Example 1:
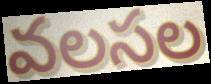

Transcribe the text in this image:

వలసల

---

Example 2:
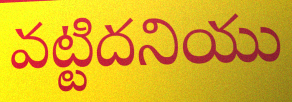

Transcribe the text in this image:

వట్టిదనియు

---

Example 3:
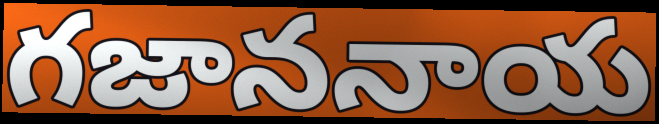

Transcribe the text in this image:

గజాననాయ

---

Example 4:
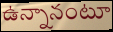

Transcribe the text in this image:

ఉన్నానంటూ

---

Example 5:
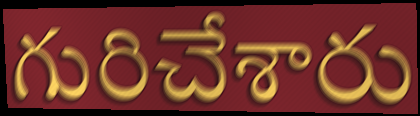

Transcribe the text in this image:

గురిచేశారు